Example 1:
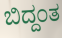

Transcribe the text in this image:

ಬಿದ್ದಂತ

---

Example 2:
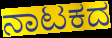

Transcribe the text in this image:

ನಾಟಕದ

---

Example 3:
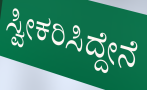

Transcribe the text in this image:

ಸ್ವೀಕರಿಸಿದ್ದೇನೆ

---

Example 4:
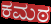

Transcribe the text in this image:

ಕಮಠ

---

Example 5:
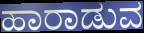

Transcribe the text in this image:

ಹಾರಾಡುವ